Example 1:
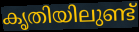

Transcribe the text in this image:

കൃതിയിലുണ്ട്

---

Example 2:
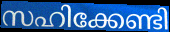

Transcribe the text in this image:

സഹിക്കേണ്ടി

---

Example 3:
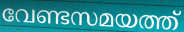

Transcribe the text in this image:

വേണ്ടസമയത്ത്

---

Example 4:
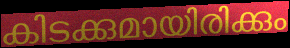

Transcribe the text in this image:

കിടക്കുമായിരിക്കും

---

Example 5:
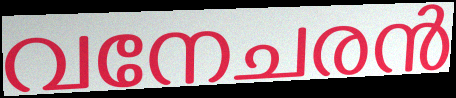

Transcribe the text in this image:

വനേചരൻ